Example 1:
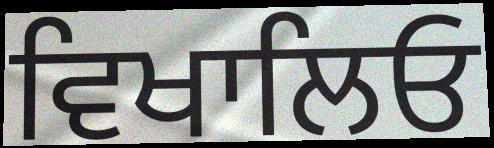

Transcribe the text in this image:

ਵਿਖਾਲਿਓ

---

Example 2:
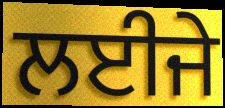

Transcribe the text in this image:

ਲਈਜੇ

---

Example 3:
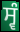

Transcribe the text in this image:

ਸ੍ਵੰ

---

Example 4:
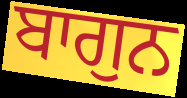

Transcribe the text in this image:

ਬਾਗੁਨ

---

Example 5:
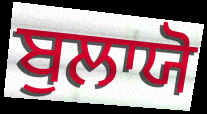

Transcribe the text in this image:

ਬੁਲਾਯੋ